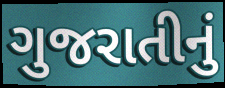
ગુજરાતીનું